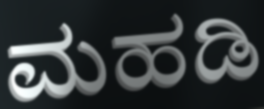
ಮಹಡಿ